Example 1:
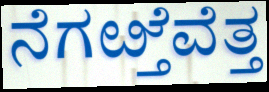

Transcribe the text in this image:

ನೆಗೞ್ತೆವೆತ್ತ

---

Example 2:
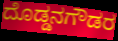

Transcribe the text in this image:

ದೊಡ್ಡನಗೌಡರ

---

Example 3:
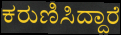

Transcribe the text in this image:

ಕರುಣಿಸಿದ್ದಾರೆ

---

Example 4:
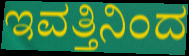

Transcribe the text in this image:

ಇವತ್ತಿನಿಂದ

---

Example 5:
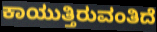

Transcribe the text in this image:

ಕಾಯುತ್ತಿರುವಂತಿದೆ